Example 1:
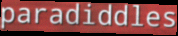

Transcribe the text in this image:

paradiddles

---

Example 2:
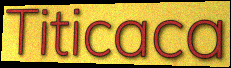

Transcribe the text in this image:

Titicaca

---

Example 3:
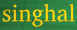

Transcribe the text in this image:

singhal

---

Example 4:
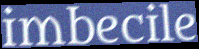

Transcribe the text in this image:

imbecile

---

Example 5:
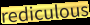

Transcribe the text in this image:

rediculous